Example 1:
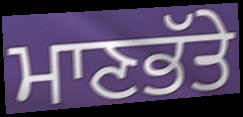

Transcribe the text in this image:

ਮਾਣਭੱਤੇ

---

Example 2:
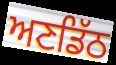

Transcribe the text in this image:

ਅਣਡਿੱਠ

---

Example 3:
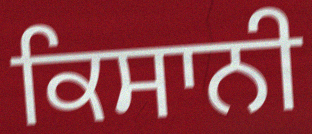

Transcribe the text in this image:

ਕਿਸਾਨੀ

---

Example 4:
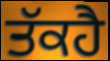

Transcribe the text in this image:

ਤੱਕਹੈ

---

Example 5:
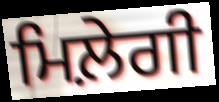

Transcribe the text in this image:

ਮਿਲ਼ੇਗੀ